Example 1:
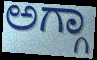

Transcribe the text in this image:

ಅಗ್ಗಾ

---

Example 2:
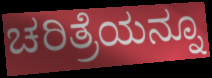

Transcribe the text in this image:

ಚರಿತ್ರೆಯನ್ನೂ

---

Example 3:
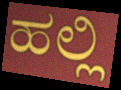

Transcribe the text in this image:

ಹಲ್ಲಿ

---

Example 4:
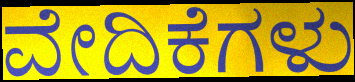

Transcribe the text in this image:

ವೇದಿಕೆಗಳು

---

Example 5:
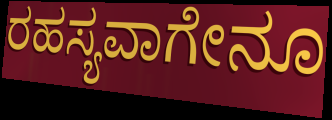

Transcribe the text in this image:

ರಹಸ್ಯವಾಗೇನೂ